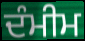
ਦੰਮੀਮ